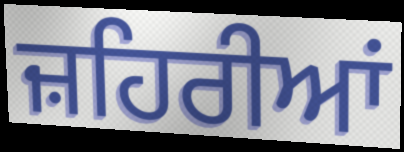
ਜ਼ਹਿਰੀਆਂ